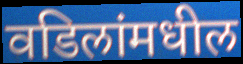
वडिलांमधील